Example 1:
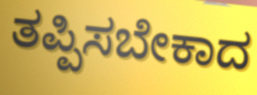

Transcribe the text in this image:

ತಪ್ಪಿಸಬೇಕಾದ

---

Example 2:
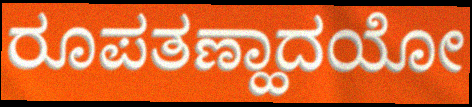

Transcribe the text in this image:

ರೂಪತಣ್ಹಾದಯೋ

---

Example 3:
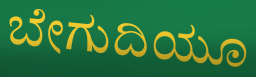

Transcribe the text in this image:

ಬೇಗುದಿಯೂ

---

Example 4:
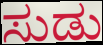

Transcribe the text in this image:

ಸುಡು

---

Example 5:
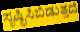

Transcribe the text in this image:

ಸೃಷ್ಟಿಸಿಬಿಡುತ್ತದೆ